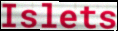
Islets